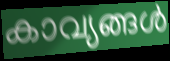
കാവ്യങ്ങൾ